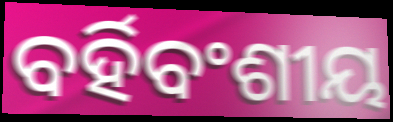
ବର୍ହିବଂଶୀୟ